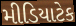
મીડિયાટેક